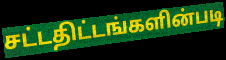
சட்டதிட்டங்களின்படி